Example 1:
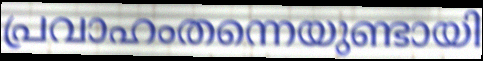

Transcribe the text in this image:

പ്രവാഹംതന്നെയുണ്ടായി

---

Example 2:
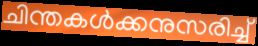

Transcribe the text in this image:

ചിന്തകൾക്കനുസരിച്ച്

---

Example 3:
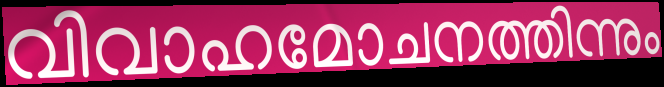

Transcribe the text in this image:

വിവാഹമോചനത്തിന്നും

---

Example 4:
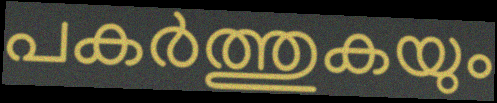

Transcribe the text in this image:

പകർത്തുകയും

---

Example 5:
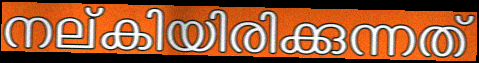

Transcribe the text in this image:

നല്‌കിയിരിക്കുന്നത്